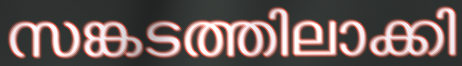
സങ്കടത്തിലാക്കി